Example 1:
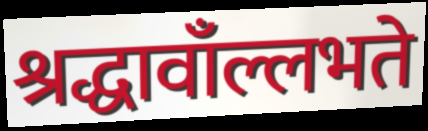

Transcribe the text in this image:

श्रद्धावाँल्लभते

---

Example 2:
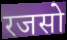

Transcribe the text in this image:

रजसो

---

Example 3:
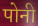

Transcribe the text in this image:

पोनी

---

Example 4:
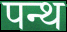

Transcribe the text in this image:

पन्थ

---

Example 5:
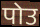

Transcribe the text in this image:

पोउ